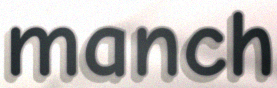
manch